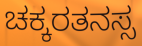
ಚಕ್ಕರತನಸ್ಸ